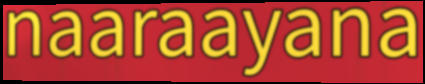
naaraayana